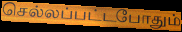
செல்லப்பட்டபோதும்